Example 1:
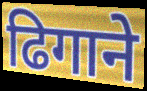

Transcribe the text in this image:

ढिगाने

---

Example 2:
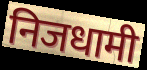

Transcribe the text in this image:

निजधामी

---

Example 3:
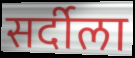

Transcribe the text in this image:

सर्दीला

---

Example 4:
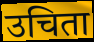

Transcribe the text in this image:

उचिता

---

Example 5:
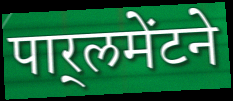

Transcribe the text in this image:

पार्लमेंटने